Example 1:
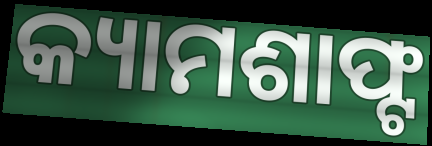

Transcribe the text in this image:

କ୍ୟାମଶାଫ୍ଟ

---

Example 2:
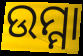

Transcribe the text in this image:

ଉମ୍ମା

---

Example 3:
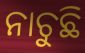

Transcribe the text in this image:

ନାଚୁଛି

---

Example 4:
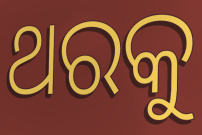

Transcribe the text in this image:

ଥରକୁ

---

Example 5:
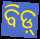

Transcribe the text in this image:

ବିଡ଼୍